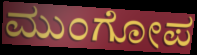
ಮುಂಗೋಪ